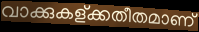
വാക്കുകള്ക്കതീതമാണ്